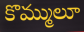
కొమ్ములూ